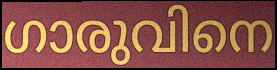
ഗാരുവിനെ